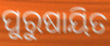
ପୁରୁଷାୟିତ